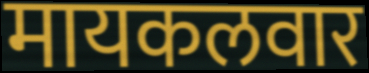
मायकलवार